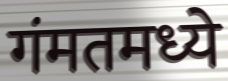
गंमतमध्ये